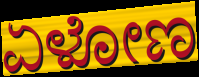
ಏಳೋಣ